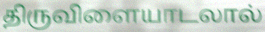
திருவிளையாடலால்